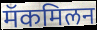
मॅकमिलन